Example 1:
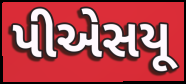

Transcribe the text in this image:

પીએસયૂ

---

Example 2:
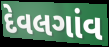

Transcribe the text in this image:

દેવલગાંવ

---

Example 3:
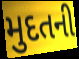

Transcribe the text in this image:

મુદતની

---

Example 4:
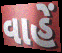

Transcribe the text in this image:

વાહેં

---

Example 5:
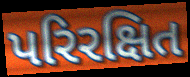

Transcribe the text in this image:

પરિરક્ષિત